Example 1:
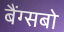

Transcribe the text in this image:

बैंग्सबो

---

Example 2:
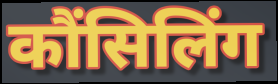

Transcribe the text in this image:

कौंसिलिंग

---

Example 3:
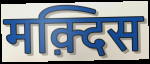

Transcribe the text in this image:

मक़्दिस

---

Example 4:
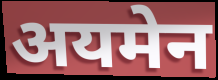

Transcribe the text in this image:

अयमेन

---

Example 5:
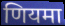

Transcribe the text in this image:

णियमा